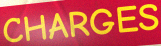
CHARGES